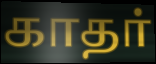
காதர்